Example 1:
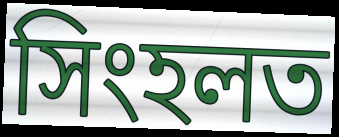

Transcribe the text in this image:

সিংহলত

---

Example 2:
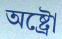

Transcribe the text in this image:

অষ্ট্ৰো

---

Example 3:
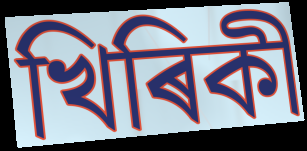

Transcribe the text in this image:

খিৰিকী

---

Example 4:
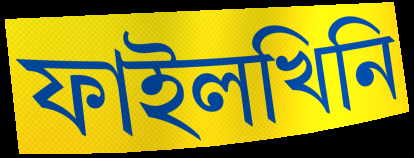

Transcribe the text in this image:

ফাইলখিনি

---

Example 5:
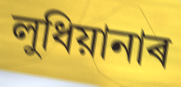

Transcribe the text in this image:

লুধিয়ানাৰ